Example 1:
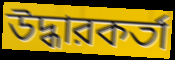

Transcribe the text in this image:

উদ্ধারকর্তা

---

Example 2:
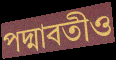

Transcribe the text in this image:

পদ্মাবতীও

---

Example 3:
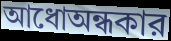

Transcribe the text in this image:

আধোঅন্ধকার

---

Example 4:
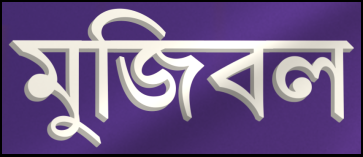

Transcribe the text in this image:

মুজিবল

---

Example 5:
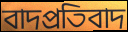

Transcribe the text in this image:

বাদপ্রতিবাদ